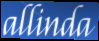
allinda